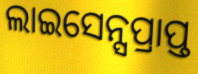
ଲାଇସେନ୍ସପ୍ରାପ୍ତ